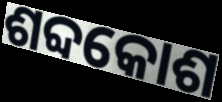
ଶବ୍ଦକୋଶ